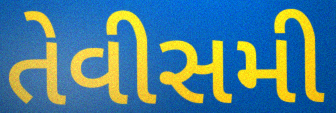
તેવીસમી